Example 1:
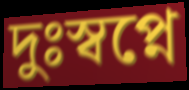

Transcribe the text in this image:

দুঃস্বপ্নে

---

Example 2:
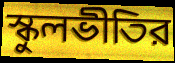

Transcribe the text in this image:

স্কুলভীতির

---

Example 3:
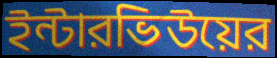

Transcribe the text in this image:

ইন্টারভিউয়ের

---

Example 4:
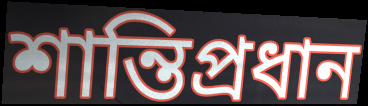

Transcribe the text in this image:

শান্তিপ্রধান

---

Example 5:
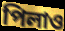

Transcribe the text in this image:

পিলাও